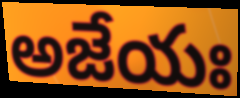
అజేయః